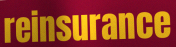
reinsurance